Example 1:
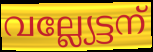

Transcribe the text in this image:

വല്ല്യേട്ടന്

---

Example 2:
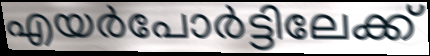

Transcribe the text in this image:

എയർപോർട്ടിലേക്ക്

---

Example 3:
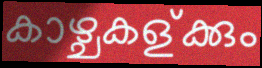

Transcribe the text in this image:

കാഴ്ചകള്ക്കും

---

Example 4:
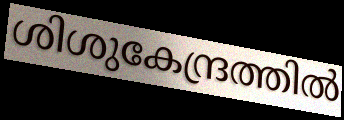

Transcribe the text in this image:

ശിശുകേന്ദ്രത്തിൽ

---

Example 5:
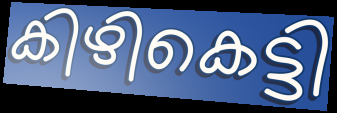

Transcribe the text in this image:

കിഴികെട്ടി